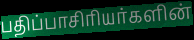
பதிப்பாசிரியர்களின்